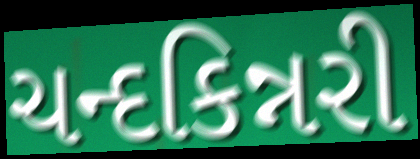
ચન્દકિન્નરી